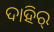
ଦାହିର୍